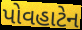
પોવહાટેન